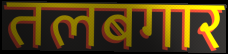
तलबगार